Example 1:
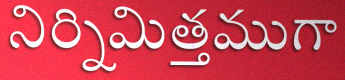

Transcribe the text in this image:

నిర్నిమిత్తముగా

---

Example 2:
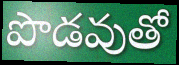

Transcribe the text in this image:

పొడవుతో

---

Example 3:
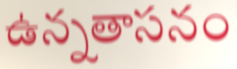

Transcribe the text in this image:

ఉన్నతాసనం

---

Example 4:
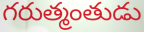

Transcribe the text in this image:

గరుత్మంతుడు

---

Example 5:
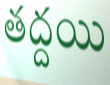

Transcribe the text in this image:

తద్దయి